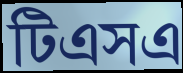
টিএসএ